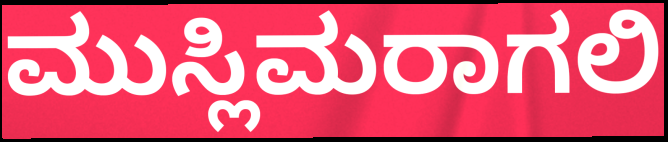
ಮುಸ್ಲಿಮರಾಗಲಿ